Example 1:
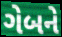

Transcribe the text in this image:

ગેબને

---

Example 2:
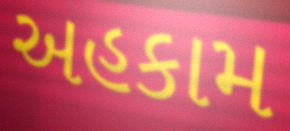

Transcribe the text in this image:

અહકામ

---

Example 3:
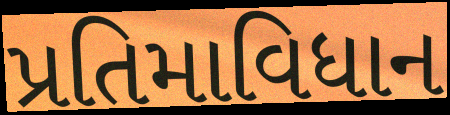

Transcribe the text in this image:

પ્રતિમાવિધાન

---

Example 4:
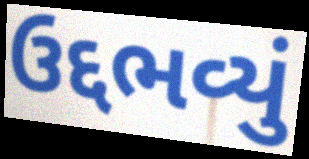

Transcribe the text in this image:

ઉદ્દભવ્યું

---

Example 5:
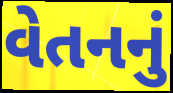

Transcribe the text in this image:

વેતનનું